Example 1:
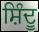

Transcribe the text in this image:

ਸ਼ਿੰਦੂ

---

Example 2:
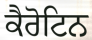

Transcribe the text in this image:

ਕੈਰੋਟਿਨ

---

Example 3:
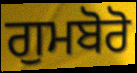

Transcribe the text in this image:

ਗੁਮਬੋਰੋ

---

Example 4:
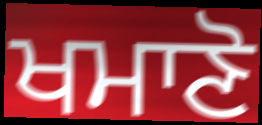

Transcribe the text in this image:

ਖਮਾਣੋ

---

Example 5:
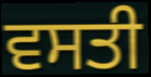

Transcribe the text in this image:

ਵਸਤੀ